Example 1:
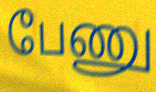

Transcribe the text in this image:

பேணு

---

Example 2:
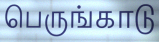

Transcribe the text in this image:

பெருங்காடு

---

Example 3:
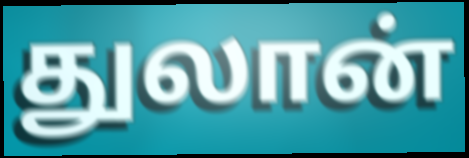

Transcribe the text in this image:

துலான்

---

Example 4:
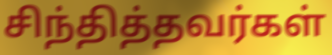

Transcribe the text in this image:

சிந்தித்தவர்கள்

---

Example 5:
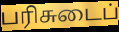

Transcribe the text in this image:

பரிசுடைப்